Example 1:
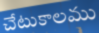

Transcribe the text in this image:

చేటుకాలము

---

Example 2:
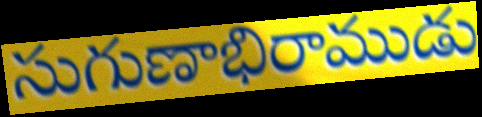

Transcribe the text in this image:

సుగుణాభిరాముడు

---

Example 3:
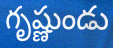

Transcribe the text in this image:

గృష్ణుండు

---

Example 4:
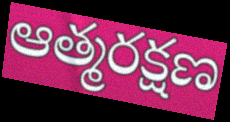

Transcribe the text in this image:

ఆత్మరక్షణ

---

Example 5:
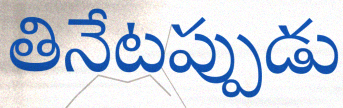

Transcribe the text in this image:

తినేటప్పుడు